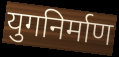
युगनिर्माण